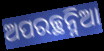
ଅପରଚ୍ଛନ୍ନିଆ